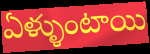
ఏళ్ళుంటాయి